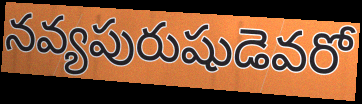
నవ్యపురుషుడెవరో